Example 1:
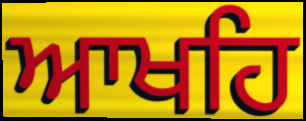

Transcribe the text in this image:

ਆਖਹਿ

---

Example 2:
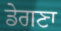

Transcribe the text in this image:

ਡੇਗਣਾ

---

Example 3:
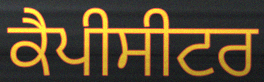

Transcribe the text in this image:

ਕੈਪੀਸੀਟਰ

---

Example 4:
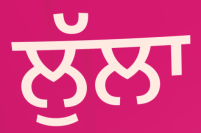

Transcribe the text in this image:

ਲੁੱਲਾ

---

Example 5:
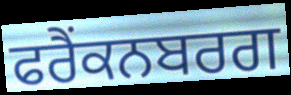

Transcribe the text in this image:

ਫਰੈਂਕਨਬਰਗ